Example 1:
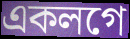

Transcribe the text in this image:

একলগে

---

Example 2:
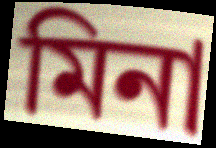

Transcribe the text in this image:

মিনা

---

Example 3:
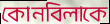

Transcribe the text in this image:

কোনবিলাকে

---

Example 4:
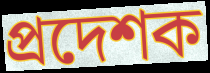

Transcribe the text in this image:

প্ৰদেশক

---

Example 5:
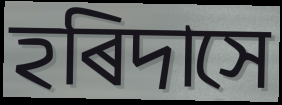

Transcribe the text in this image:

হৰিদাসে